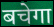
बचेगा